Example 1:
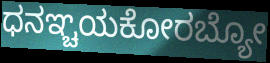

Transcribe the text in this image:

ಧನಞ್ಚಯಕೋರಬ್ಯೋ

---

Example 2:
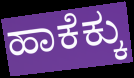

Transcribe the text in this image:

ಹಾಕೆಕ್ಕು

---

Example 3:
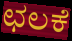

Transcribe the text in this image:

ಛಲಕೆ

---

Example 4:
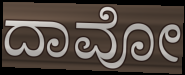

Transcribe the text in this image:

ದಾವೋ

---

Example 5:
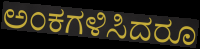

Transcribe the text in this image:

ಅಂಕಗಳಿಸಿದರೂ